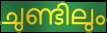
ചുണ്ടിലും